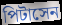
পিটাসেন